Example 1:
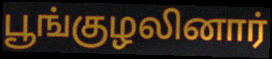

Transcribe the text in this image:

பூங்குழலினார்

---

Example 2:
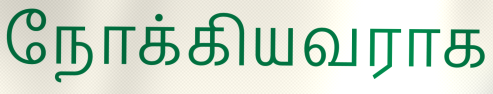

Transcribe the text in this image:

நோக்கியவராக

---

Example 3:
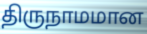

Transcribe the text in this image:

திருநாமமான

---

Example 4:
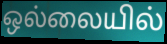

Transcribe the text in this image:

ஒல்லையில்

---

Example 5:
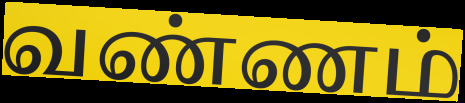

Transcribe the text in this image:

வண்ணம்